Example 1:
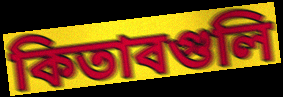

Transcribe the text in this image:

কিতাবগুলি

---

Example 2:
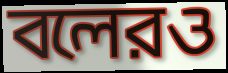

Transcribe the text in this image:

বলেরও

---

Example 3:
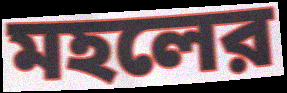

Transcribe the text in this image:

মহলের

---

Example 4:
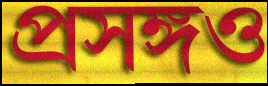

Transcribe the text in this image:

প্রসঙ্গও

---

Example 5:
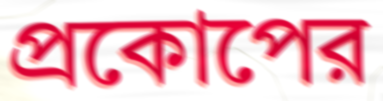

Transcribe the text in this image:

প্রকোপের